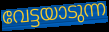
വേട്ടയാടുന്ന